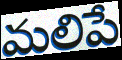
మలిపే